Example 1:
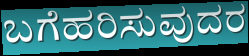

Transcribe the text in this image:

ಬಗೆಹರಿಸುವುದರ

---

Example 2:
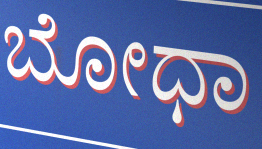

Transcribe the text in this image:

ಬೋಧಾ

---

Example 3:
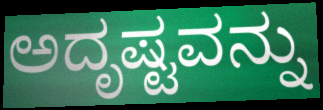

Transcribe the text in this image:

ಅದೃಷ್ಟವನ್ನು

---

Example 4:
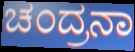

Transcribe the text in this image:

ಚಂದ್ರನಾ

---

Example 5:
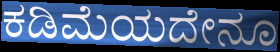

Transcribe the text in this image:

ಕಡಿಮೆಯದೇನೂ